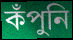
কঁপুনি